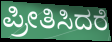
ಪ್ರೀತಿಸಿದರೆ